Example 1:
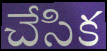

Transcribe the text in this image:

చేసిక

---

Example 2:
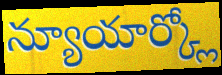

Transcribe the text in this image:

న్యూయార్క్లో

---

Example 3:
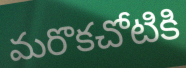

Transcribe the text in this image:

మరొకచోటికి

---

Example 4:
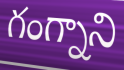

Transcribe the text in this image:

గంగ్నాని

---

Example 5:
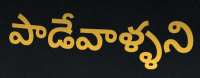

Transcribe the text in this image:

పాడేవాళ్ళని